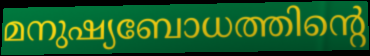
മനുഷ്യബോധത്തിന്റെ